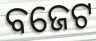
ବଜେଟ